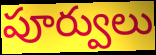
పూర్వులు